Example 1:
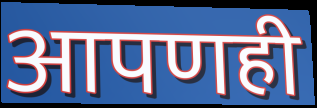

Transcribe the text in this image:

आपणही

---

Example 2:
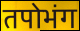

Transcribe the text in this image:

तपोभंग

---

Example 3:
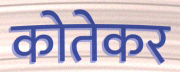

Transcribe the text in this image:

कोतेकर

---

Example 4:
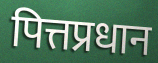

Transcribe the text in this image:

पित्तप्रधान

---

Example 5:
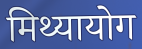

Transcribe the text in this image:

मिथ्यायोग